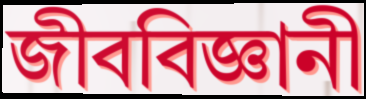
জীববিজ্ঞানী